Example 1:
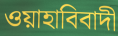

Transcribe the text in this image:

ওয়াহাবিবাদী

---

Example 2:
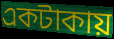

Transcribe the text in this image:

একটাকায়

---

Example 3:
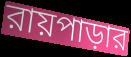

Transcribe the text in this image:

রায়পাড়ার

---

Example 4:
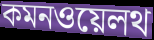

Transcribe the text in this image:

কমনওয়েলথ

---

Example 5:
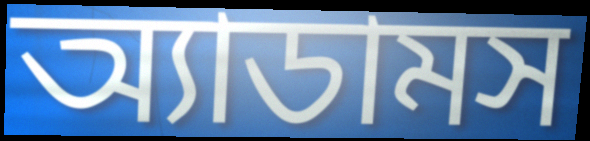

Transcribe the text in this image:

অ্যাডামস